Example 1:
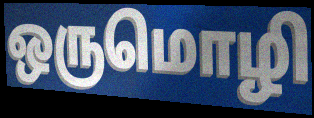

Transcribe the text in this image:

ஒருமொழி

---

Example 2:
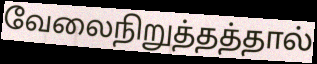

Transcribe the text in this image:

வேலைநிறுத்தத்தால்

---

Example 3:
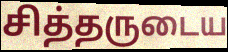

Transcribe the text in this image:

சித்தருடைய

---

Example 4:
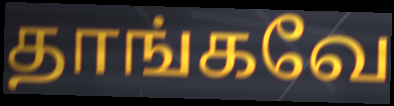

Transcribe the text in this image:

தாங்கவே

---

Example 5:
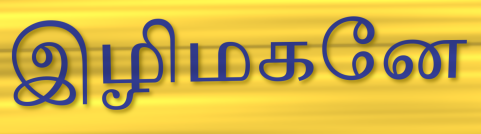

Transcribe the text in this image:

இழிமகனே